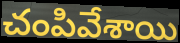
చంపివేశాయి